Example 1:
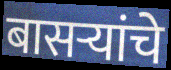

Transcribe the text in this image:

बासऱ्यांचे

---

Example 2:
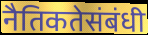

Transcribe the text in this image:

नैतिकतेसंबंधी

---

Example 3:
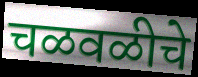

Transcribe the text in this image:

चळवळीचे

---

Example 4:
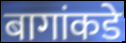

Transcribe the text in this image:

बागांकडे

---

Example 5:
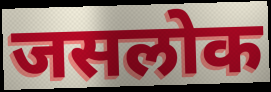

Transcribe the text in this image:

जसलोक